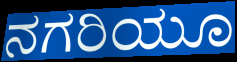
ನಗರಿಯೂ